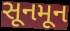
સૂનમૂન